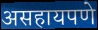
असहायपणे